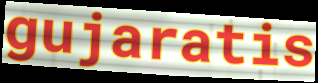
gujaratis